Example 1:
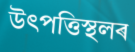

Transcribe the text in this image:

উৎপত্তিস্থলৰ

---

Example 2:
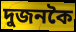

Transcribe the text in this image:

দুজনকৈ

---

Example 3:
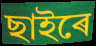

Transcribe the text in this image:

ছাইৰে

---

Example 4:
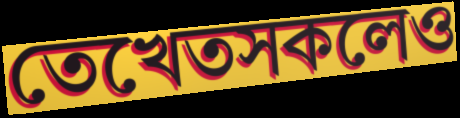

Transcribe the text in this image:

তেখেতসকলেও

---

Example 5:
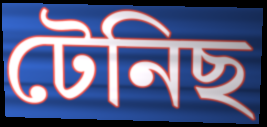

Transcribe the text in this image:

টেনিছ